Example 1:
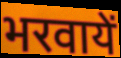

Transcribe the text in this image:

भरवायें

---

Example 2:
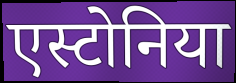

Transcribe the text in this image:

एस्टोनिया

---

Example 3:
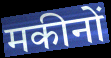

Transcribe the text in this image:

मकीनों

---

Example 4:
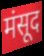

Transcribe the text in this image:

मंसूद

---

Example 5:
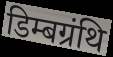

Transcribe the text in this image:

डिम्बग्रंथि